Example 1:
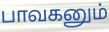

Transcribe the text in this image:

பாவகனும்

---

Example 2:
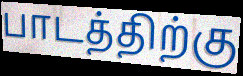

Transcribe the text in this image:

பாடத்திற்கு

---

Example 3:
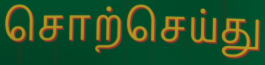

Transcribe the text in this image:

சொற்செய்து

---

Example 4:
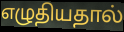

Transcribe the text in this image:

எழுதியதால்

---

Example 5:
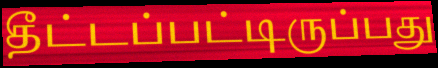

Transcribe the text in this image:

தீட்டப்பட்டிருப்பது